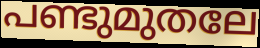
പണ്ടുമുതലേ